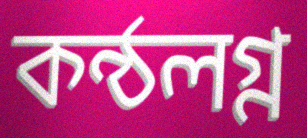
কন্ঠলগ্ন